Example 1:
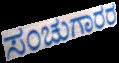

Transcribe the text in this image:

ಸಂಚುಗಾರರ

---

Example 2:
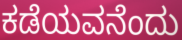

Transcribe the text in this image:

ಕಡೆಯವನೆಂದು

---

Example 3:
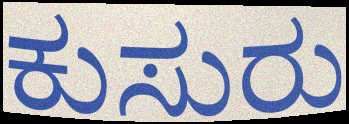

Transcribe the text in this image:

ಕುಸುರು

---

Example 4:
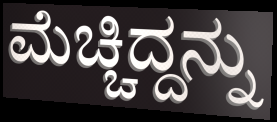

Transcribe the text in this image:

ಮೆಚ್ಚಿದ್ದನ್ನು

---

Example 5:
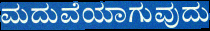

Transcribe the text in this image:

ಮದುವೆಯಾಗುವುದು